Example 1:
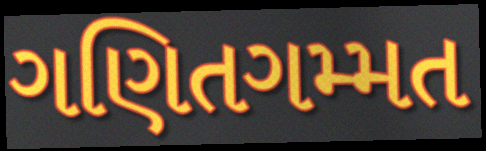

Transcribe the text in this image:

ગણિતગમ્મત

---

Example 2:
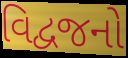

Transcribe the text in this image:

વિદ્વજનો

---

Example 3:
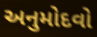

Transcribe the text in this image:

અનુમોદવો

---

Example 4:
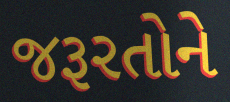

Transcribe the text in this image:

જરૂરતોને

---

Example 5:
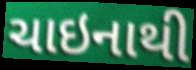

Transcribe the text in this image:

ચાઇનાથી